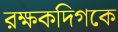
রক্ষকদিগকে